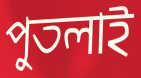
পুতলাই